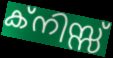
ക്നിസ്സ്